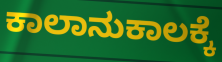
ಕಾಲಾನುಕಾಲಕ್ಕೆ